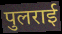
पुलराई